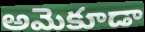
అమెకూడా